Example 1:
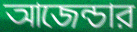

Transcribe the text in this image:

আজেন্ডার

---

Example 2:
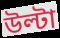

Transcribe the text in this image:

উল্টা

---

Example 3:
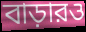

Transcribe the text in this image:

বাড়ারও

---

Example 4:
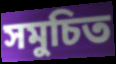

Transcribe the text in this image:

সমুচিত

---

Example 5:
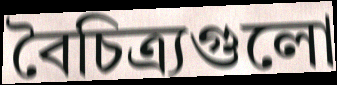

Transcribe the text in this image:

বৈচিত্র্যগুলো